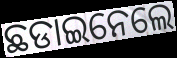
ଛଡାଇନେଲେ